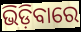
ଭିଡ଼ିବାରେ